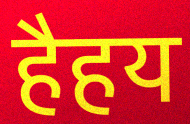
हैहय